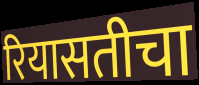
रियासतीचा